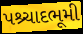
પશ્ર્ચાદભૂમી